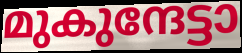
മുകുന്ദേട്ടാ